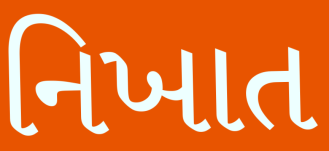
નિખાત